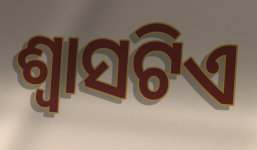
ଶ୍ଵାସଟିଏ